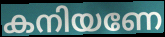
കനിയണേ